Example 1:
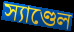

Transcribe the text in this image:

স্যাণ্ডেল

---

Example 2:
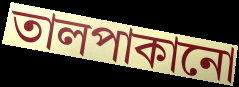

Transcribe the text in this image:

তালপাকানো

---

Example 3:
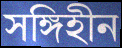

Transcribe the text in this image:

সঙ্গিহীন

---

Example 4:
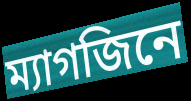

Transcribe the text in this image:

ম্যাগজিনে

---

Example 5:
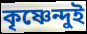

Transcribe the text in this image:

কৃষ্ণেন্দুই